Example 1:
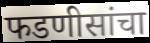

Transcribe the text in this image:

फडणीसांचा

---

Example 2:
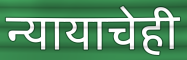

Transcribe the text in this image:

न्यायाचेही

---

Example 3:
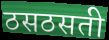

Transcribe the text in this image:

ठसठसती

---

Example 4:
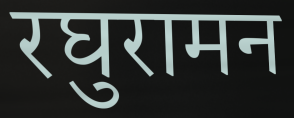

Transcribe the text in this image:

रघुरामन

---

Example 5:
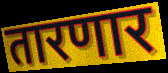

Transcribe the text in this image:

तारणार